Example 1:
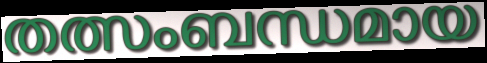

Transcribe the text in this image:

തത്സംബന്ധമായ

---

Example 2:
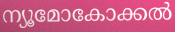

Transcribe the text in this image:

ന്യൂമോകോക്കൽ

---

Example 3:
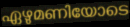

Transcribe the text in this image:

ഏഴുമണിയോടെ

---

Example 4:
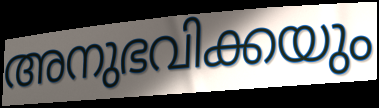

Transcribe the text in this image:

അനുഭവിക്കയും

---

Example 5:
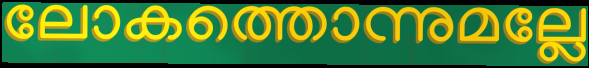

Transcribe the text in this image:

ലോകത്തൊന്നുമല്ലേ